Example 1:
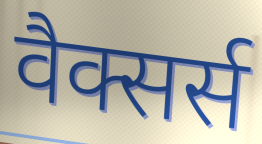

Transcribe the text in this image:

वैक्सर्स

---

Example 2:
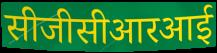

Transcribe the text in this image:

सीजीसीआरआई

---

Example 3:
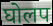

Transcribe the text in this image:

घोलप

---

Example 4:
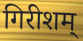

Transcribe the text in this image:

गिरीशम्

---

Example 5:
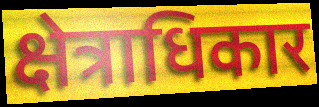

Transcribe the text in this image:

क्षेत्राधिकार